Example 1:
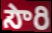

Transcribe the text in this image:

సౌరి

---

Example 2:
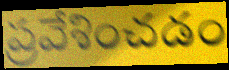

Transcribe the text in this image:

ప్రవేశించడం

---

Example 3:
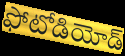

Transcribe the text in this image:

ఫోటోడియోడ్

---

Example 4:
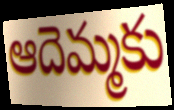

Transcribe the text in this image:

ఆదెమ్మకు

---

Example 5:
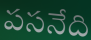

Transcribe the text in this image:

పసనేది